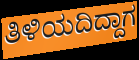
ತಿಳಿಯದಿದ್ದಾಗ